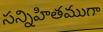
సన్నిహితముగా